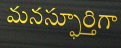
మనస్ఫూర్తిగా